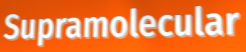
Supramolecular